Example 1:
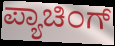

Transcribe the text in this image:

ಪ್ಯಾಚಿಂಗ್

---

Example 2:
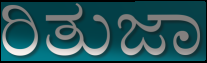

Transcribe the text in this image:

ರಿತುಜಾ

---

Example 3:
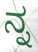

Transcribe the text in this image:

ನ್ನ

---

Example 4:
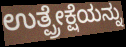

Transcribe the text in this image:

ಉತ್ಪ್ರೇಕ್ಷೆಯನ್ನು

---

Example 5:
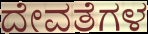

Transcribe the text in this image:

ದೇವತೆಗಳ